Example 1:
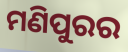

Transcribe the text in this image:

ମଣିପୁରର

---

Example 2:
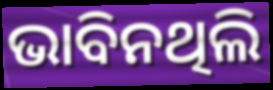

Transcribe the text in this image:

ଭାବିନଥିଲି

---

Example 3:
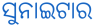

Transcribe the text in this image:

ସୁନାଇଟାର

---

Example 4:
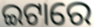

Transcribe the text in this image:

ଇଟାରେ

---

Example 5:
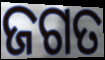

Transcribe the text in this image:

ଜଗତ